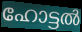
ഹോട്ടൽ